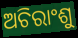
ଅଚିରାଂଶୁ